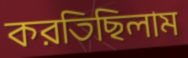
করতিছিলাম